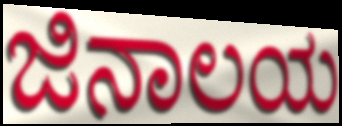
ಜಿನಾಲಯ